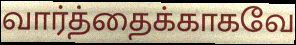
வார்த்தைக்காகவே